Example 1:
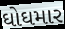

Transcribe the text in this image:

ઘોઘમાર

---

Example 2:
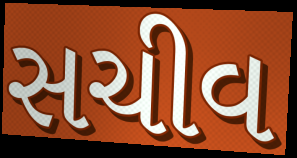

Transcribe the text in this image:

સચીવ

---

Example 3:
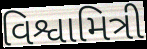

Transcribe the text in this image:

વિશ્વામિત્રી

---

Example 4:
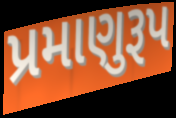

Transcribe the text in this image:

પ્રમાણુરૂપ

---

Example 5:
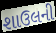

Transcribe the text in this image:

શાઉલની